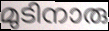
മുടിനാരു